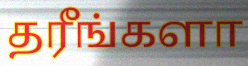
தரீங்களா